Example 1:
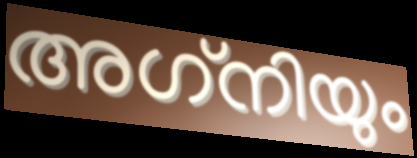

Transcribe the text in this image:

അഗ്‌നിയും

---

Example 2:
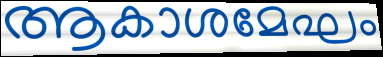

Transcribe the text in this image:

ആകാശമേഘം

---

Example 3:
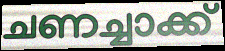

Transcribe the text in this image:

ചണച്ചാക്ക്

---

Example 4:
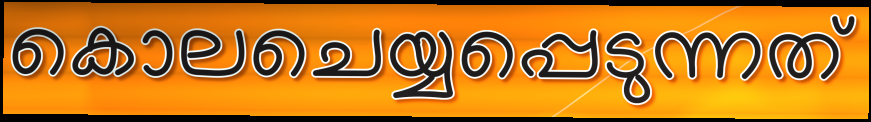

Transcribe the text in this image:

കൊലചെയ്യപ്പെടുന്നത്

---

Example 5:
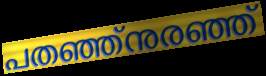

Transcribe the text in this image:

പതഞ്ഞ്നുരഞ്ഞ്